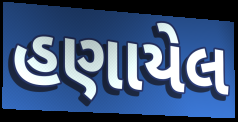
હણાયેલ